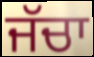
ਜੱਚਾ